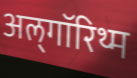
अल्गॉरिथ्म